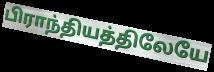
பிராந்தியத்திலேயே